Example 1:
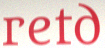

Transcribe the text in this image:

retd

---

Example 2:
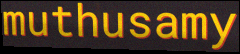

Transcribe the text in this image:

muthusamy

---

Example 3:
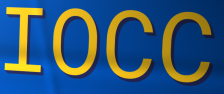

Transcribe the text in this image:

IOCC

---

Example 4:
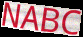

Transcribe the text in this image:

NABC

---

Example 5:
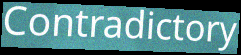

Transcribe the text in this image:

Contradictory